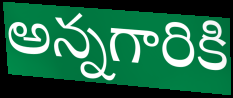
అన్నగారికి